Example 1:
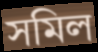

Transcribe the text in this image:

সমিল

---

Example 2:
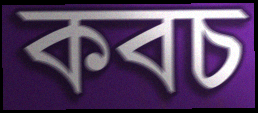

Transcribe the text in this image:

কবচ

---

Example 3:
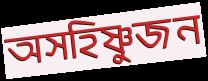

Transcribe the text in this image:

অসহিষ্ণুজন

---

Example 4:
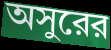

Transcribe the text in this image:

অসুরের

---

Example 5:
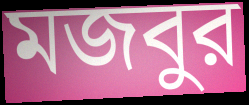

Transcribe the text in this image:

মজবুর